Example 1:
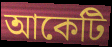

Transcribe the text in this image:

আকেটি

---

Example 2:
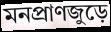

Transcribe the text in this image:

মনপ্রাণজুড়ে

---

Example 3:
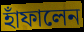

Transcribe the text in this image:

হাঁফালেন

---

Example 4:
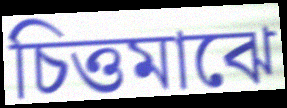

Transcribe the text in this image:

চিত্তমাঝে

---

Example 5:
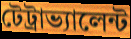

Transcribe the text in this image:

টেট্রাভ্যালেন্ট